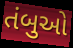
તંબુઓ